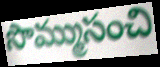
సొమ్ముసంచి